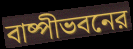
বাষ্পীভবনের